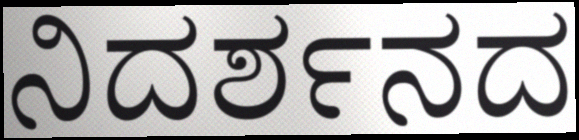
ನಿದರ್ಶನದ